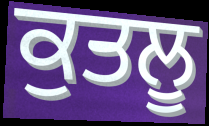
ਕੁਤਲੂ